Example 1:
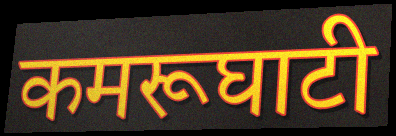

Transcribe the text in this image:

कमरूघाटी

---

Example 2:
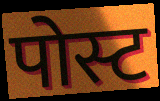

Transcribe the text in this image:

पोस्‍ट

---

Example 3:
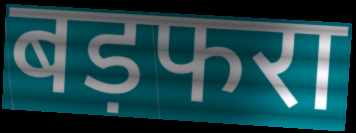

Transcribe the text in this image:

बड़फरा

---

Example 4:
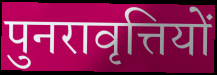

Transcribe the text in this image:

पुनरावृत्तियों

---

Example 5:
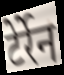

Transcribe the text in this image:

टेर्रेन